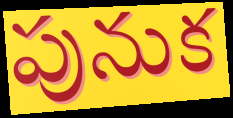
పునుక